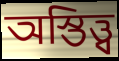
অস্তিত্ত্ব